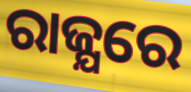
ରାଜ୍ଯରେ